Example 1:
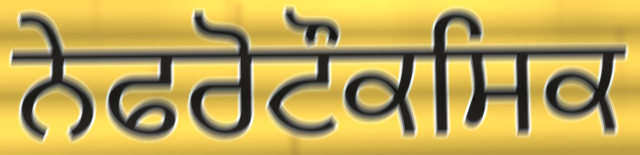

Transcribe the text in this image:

ਨੇਫਰੋਟੌਕਸਿਕ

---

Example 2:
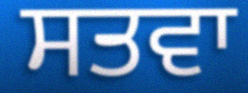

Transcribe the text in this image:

ਸਤਵਾ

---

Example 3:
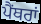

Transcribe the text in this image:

ਪੈਂਥਰਾਂ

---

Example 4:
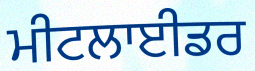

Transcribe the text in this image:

ਮੀਟਲਾਈਡਰ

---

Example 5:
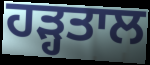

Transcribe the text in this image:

ਹੜ੍ਹਤਾਲ